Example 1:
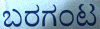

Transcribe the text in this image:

ಬರಗಂಟ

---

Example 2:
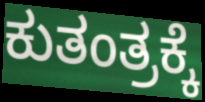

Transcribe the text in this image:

ಕುತಂತ್ರಕ್ಕೆ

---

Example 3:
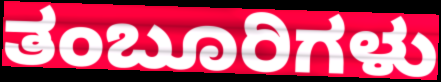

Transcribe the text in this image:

ತಂಬೂರಿಗಳು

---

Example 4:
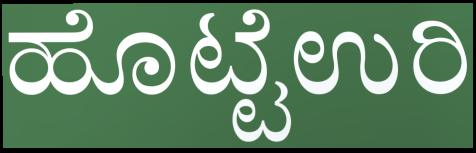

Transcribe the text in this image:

ಹೊಟ್ಟೆಉರಿ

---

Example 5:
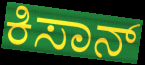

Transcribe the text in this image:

ಕಿಸಾನ್